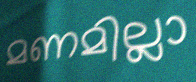
മണമില്ലാ